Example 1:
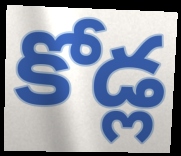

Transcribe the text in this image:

కోడ్ల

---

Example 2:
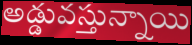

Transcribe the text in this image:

అడ్డువస్తున్నాయి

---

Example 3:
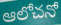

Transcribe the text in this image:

ఆలోచనో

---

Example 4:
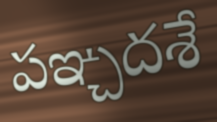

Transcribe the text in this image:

పఞ్చదశే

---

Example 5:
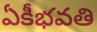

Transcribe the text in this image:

ఏకీభవతి